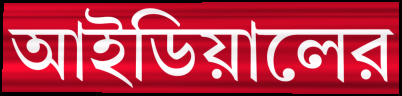
আইডিয়ালের